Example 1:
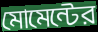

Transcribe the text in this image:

মোমেন্টের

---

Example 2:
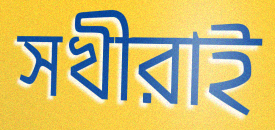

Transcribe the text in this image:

সখীরাই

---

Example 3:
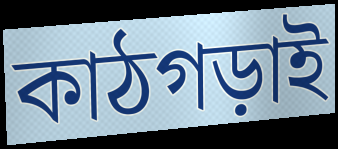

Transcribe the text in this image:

কাঠগড়াই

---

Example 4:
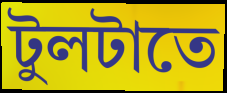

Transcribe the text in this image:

টুলটাতে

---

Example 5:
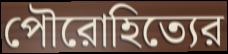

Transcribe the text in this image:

পৌরোহিত্যের